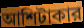
আশিটাকার